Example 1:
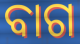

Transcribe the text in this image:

ବାଗ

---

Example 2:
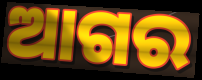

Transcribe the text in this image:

ଆଗର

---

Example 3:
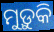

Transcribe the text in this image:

ମୁଡ଼ୁକି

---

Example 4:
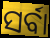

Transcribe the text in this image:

ସର୍ବା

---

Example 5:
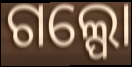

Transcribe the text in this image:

ଗଲ୍ପୋ